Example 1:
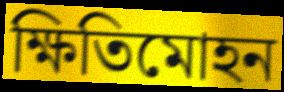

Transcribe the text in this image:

ক্ষিতিমোহন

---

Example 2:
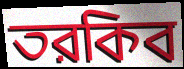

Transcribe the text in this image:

তরকিব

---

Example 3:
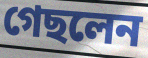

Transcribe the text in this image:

গেছলেন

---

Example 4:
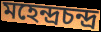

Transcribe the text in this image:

মহেন্দ্রচন্দ্র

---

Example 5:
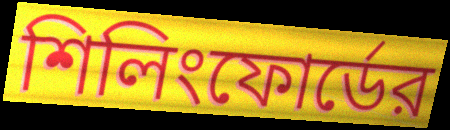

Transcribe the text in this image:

শিলিংফোর্ডের